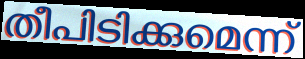
തീപിടിക്കുമെന്ന്